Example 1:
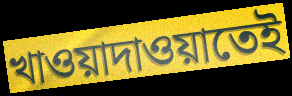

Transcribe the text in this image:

খাওয়াদাওয়াতেই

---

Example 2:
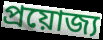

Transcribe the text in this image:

প্রয়োজ্য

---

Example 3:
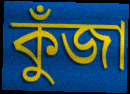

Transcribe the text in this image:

কুঁজা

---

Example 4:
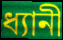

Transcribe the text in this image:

ধ্যানী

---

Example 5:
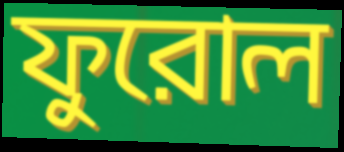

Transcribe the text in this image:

ফুরোল